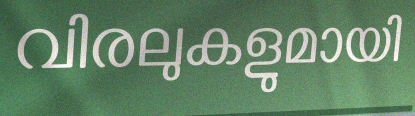
വിരലുകളുമായി